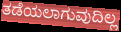
ತಡೆಯಲಾಗುವುದಿಲ್ಲ